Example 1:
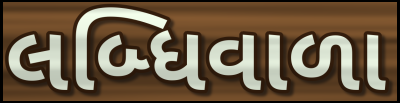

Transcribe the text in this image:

લબ્ધિવાળા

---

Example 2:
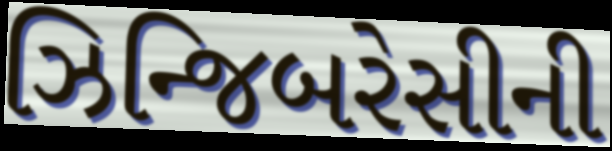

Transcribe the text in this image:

ઝિન્જિબરેસીની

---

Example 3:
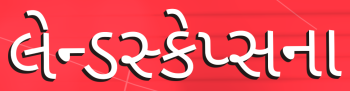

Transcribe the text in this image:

લેન્ડસ્કેપ્સના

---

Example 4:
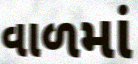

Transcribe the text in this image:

વાળમાં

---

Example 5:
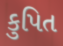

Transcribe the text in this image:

કુપિત